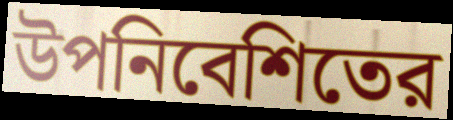
উপনিবেশিতের